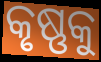
କୃଷ୍ଣକୁ